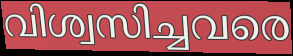
വിശ്വസിച്ചവരെ